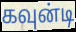
கவுன்டி